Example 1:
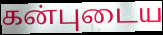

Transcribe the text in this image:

கன்புடைய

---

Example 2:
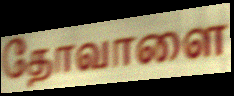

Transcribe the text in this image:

தோவாளை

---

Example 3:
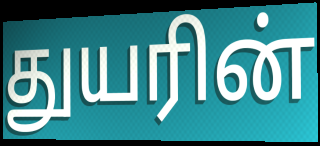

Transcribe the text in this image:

துயரின்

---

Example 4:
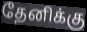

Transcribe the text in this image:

தேனிக்கு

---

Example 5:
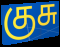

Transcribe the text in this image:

குசு